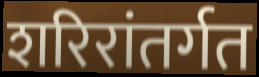
शरिरांतर्गत